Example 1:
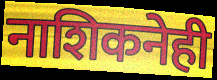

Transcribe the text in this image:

नाशिकनेही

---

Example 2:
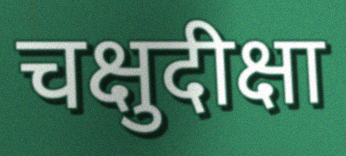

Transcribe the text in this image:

चक्षुदीक्षा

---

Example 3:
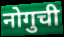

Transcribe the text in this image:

नोगुची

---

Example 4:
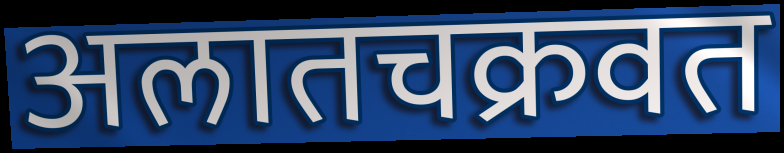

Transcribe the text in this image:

अलातचक्रवत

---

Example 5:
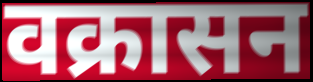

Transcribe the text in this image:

वक्रासन